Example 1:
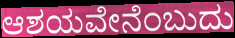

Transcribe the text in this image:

ಆಶಯವೇನೆಂಬುದು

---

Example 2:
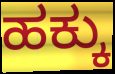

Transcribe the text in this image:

ಹಕ್ಕು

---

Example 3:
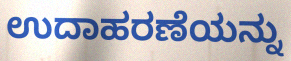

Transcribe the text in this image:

ಉದಾಹರಣೆಯನ್ನು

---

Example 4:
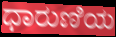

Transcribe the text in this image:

ಧಾರುಣಿಯ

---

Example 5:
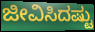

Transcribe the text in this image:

ಜೀವಿಸಿದಷ್ಟು